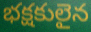
భక్షకులైన